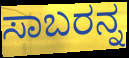
ಸಾಬರನ್ನ